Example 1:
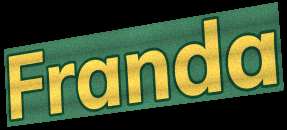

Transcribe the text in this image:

Franda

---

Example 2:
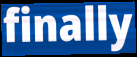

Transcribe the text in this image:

finally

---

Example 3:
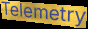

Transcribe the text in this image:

Telemetry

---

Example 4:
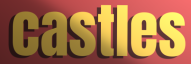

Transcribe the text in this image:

castles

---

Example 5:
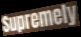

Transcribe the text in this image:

Supremely